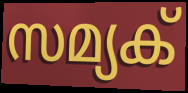
സമ്യക്